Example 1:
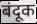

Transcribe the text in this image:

बंदूक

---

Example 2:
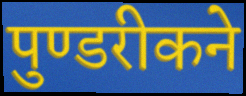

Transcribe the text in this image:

पुण्डरीकने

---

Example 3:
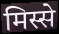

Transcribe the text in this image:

मिस्से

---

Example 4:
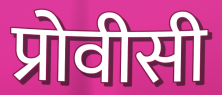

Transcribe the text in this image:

प्रोवीसी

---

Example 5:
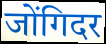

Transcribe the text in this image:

जोंगिदर